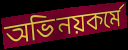
অভিনয়কর্মে